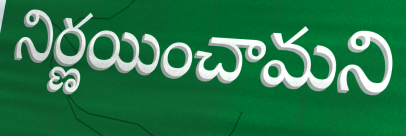
నిర్ణయించామని